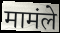
मामंले